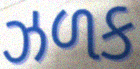
ઝળક